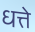
धत्ते